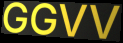
GGVV